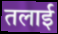
तलाई